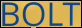
BOLT